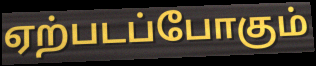
ஏற்படப்போகும்